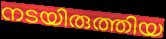
നടയിരുത്തിയ